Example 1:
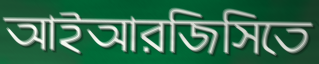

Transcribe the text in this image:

আইআরজিসিতে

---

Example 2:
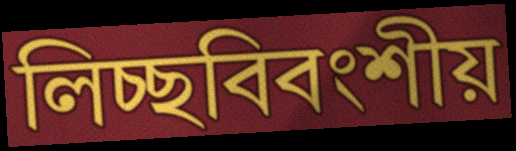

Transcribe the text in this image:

লিচ্ছবিবংশীয়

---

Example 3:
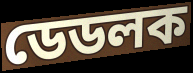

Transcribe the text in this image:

ডেডলক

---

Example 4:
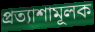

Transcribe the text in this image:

প্রত্যাশামূলক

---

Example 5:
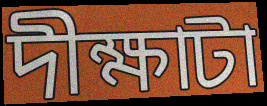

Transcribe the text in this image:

দীক্ষাটা